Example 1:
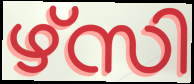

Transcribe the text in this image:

ഴ്സി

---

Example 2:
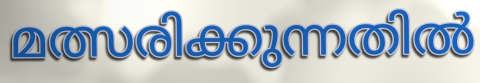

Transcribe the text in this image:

മത്സരിക്കുന്നതിൽ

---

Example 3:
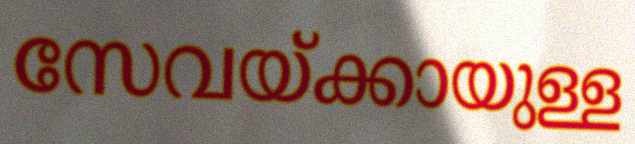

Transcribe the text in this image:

സേവയ്ക്കായുള്ള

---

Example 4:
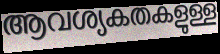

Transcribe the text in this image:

ആവശ്യകതകളുള്ള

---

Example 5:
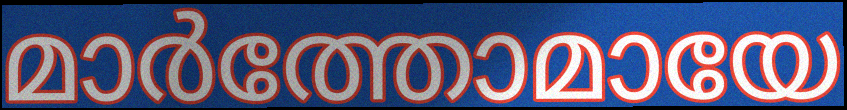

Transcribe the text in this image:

മാർത്തോമായേ